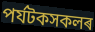
পৰ্যটকসকলৰ